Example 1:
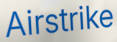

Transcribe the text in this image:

Airstrike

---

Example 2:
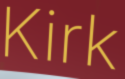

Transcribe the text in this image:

Kirk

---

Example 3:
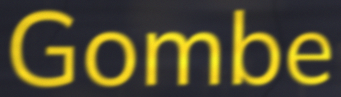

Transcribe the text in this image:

Gombe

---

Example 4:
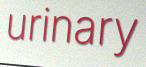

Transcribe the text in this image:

urinary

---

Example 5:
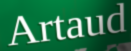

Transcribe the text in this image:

Artaud